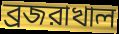
ব্রজরাখাল